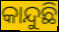
କାନ୍ଦୁଛି